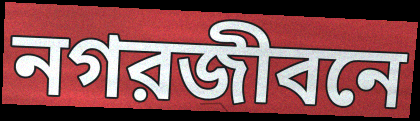
নগরজীবনে